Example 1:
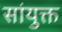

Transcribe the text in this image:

सांयुक्त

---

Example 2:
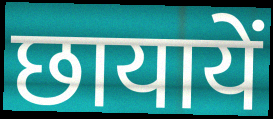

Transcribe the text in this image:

छायायें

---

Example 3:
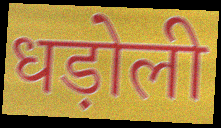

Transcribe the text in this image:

धड़ोली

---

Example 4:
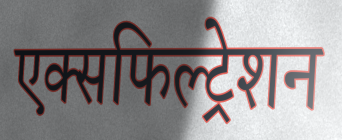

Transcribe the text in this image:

एक्सफिल्ट्रेशन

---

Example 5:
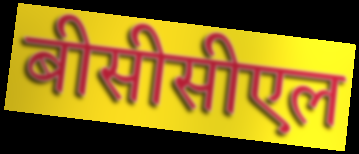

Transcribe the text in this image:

बीसीसीएल